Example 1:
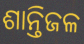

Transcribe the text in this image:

ଶାନ୍ତିଜଳ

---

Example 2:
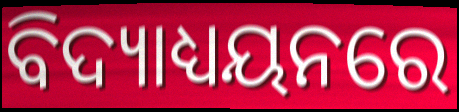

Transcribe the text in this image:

ବିଦ୍ୟାଧ୍ୟୟନରେ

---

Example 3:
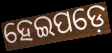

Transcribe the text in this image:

ହେଇପଡ଼େ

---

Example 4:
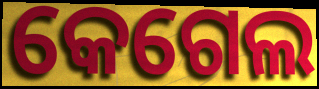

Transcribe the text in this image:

କେଗେଲ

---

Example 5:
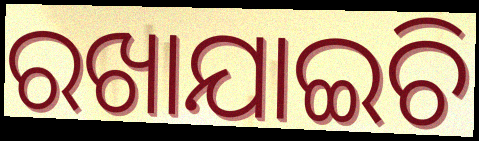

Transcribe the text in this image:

ରଖାଯାଇଚି